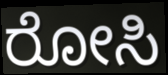
ರೋಸಿ